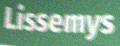
Lissemys